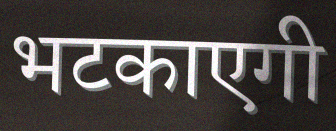
भटकाएगी